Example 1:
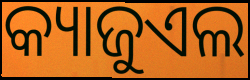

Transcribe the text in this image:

କ୍ୟାଜୁଏଲ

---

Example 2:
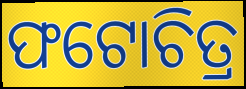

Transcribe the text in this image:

ଫଟୋଚିତ୍ର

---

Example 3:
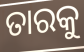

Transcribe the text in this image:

ତାରକୁ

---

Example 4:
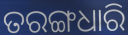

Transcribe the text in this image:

ତରଙ୍ଗଧାରି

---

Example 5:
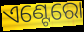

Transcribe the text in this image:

ଏଣ୍ଟେରୋ